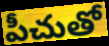
పీచుతో